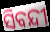
ସିବନ୍ଦୀ